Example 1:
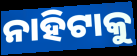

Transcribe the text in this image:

ନାହିଟାକୁ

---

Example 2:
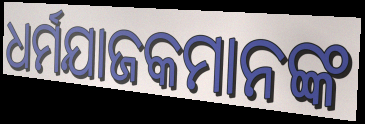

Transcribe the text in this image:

ଧର୍ମଯାଜକମାନଙ୍କ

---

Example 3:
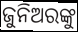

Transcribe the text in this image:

ଜୁନିଅରଙ୍କୁ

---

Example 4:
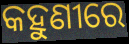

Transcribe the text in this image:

କହୁଣୀରେ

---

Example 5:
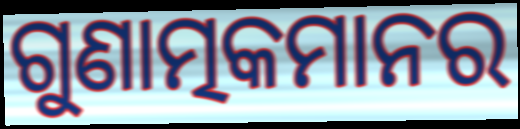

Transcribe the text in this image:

ଗୁଣାତ୍ମକମାନର